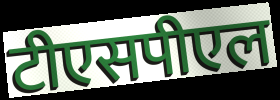
टीएसपीएल